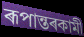
ৰূপান্তৰকামী